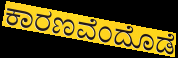
ಕಾರಣವೆಂದೊಡೆ